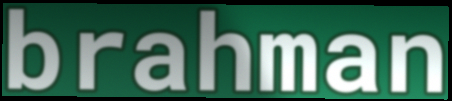
brahman